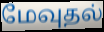
மேவுதல்